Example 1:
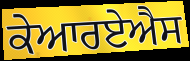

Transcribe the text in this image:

ਕੇਆਰਏਐਸ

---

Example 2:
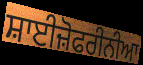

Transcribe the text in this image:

ਸ਼ਾਈਜ਼ੋਫਰੀਨੀਆ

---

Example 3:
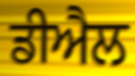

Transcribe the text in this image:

ਡੀਐਲ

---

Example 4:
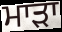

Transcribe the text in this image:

ਮਾਡ਼ਾ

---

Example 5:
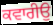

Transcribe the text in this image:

ਕਵਾਰੀਉ